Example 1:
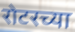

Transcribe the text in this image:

रोटरच्या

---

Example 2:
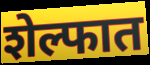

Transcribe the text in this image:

शेल्फात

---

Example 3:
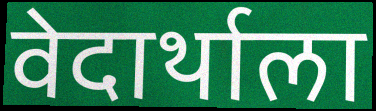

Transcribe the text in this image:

वेदार्थाला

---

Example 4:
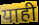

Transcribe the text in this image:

याही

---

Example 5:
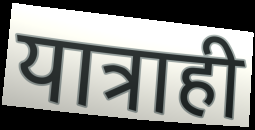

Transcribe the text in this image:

यात्राही